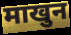
माखुन